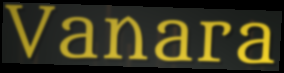
Vanara